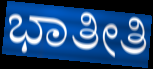
ಭಾತೀತಿ